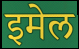
इमेल